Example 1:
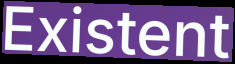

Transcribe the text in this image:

Existent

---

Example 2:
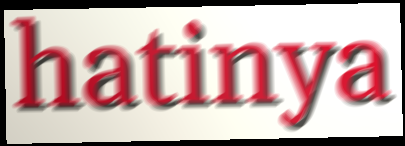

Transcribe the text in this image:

hatinya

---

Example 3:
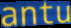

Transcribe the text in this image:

antu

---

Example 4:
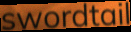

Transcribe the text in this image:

swordtail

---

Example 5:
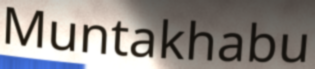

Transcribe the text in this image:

Muntakhabu